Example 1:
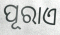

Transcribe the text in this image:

ପୂରାଏ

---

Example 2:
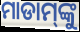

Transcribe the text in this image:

ମାଡାମ୍‌ଙ୍କୁ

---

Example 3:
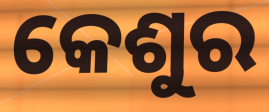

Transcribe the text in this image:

କେଶୁର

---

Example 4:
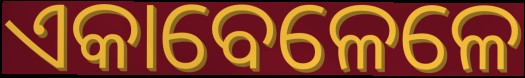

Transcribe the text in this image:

ଏକାବେଳେଳେ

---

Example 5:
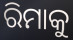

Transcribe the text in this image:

ରିମାକୁ